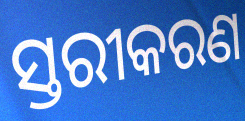
ସ୍ତରୀକରଣ